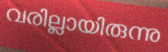
വരില്ലായിരുന്നു